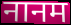
नानम